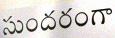
సుందరంగా